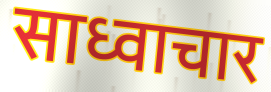
साध्वाचार